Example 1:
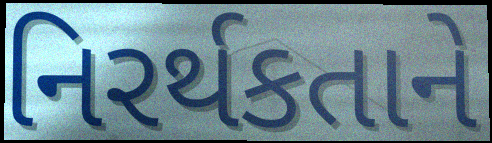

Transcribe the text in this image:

નિરર્થકતાને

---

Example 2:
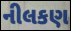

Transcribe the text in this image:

નીલકણ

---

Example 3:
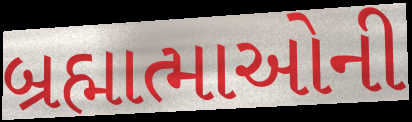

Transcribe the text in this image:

બ્રહ્માત્માઓની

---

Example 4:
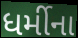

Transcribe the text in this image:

ધર્મીના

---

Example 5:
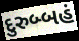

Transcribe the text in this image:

દુરુબ્બહં